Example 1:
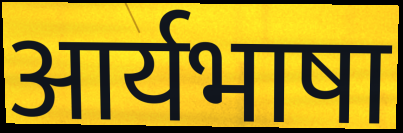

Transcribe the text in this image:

आर्यभाषा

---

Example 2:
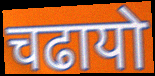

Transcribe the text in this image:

चढायो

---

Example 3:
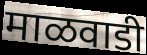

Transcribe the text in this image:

माळवाडी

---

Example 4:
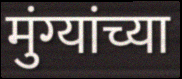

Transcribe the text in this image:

मुंग्यांच्या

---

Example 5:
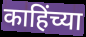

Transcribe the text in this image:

काहिंच्या